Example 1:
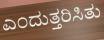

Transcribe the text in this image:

ಎಂದುತ್ತರಿಸಿತು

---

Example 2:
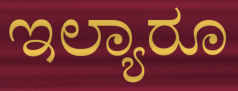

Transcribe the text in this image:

ಇಲ್ಯಾರೂ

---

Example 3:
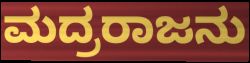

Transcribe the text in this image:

ಮದ್ರರಾಜನು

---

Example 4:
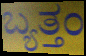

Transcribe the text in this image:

ಬ್ಯತ್ತಂ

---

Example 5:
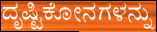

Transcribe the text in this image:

ದೃಷ್ಟಿಕೋನಗಳನ್ನು